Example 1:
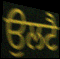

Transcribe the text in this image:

ਉਲਟੈ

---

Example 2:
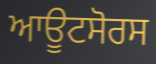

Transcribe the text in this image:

ਆਊਟਸੋਰਸ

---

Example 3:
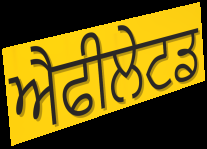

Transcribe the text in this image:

ਐਫੀਲੇਟਡ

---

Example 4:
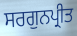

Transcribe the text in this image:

ਸਰਗੁਨਪ੍ਰੀਤ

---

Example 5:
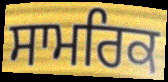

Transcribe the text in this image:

ਸਾਮਰਿਕ